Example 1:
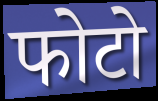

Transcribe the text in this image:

फोटो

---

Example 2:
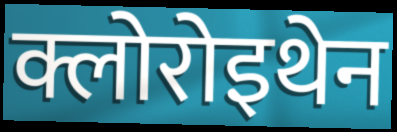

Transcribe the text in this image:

क्लोरोइथेन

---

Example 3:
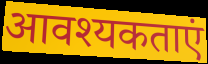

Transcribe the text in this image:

आवश्यकताएं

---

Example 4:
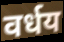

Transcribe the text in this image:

वर्धय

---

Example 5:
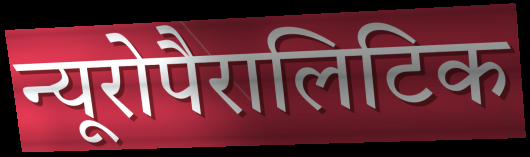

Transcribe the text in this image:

न्यूरोपैरालिटिक